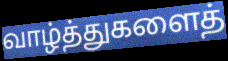
வாழ்த்துகளைத்